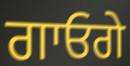
ਗਾਓਗੇ